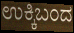
ಉಕ್ಕಿಬಂದ